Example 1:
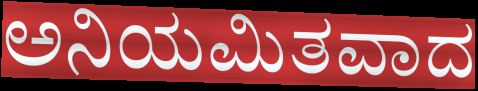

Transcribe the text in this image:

ಅನಿಯಮಿತವಾದ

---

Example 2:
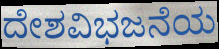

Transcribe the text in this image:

ದೇಶವಿಭಜನೆಯ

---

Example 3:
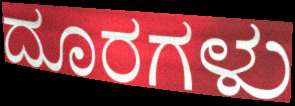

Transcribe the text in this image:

ದೂರಗಳು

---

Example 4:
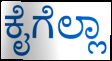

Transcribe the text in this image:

ಕೈಗೆಲ್ಲಾ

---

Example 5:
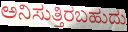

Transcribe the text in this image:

ಅನಿಸುತ್ತಿರಬಹುದು